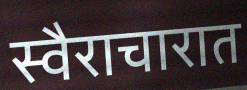
स्वैराचारात